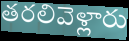
తరలివెళ్లారు